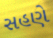
સહણે